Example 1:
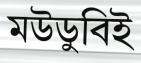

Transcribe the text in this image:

মউডুবিই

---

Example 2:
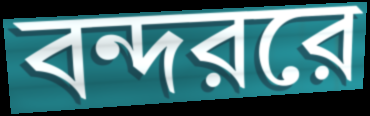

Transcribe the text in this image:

বন্দররে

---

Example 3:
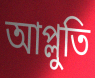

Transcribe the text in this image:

আপ্লুতি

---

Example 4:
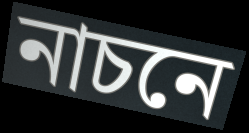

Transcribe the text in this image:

নাচনে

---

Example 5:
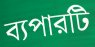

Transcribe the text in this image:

ব্যপারটি